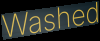
Washed